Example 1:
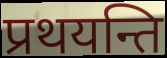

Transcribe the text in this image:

प्रथयन्ति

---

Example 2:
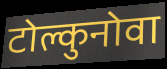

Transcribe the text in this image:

टोल्कुनोवा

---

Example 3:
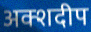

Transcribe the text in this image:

अक्शदीप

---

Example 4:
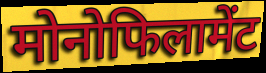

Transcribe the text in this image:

मोनोफिलामेंट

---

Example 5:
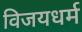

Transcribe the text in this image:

विजयधर्म